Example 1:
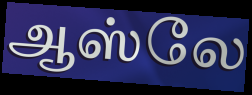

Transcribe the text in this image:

ஆஸ்லே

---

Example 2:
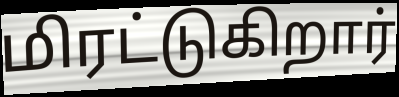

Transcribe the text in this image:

மிரட்டுகிறார்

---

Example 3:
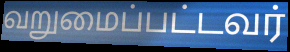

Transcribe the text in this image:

வறுமைப்பட்டவர்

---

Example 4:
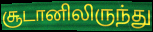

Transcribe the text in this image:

சூடானிலிருந்து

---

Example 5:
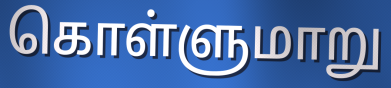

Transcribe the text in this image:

கொள்ளுமாறு